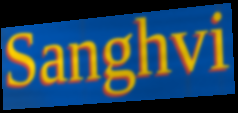
Sanghvi